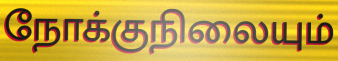
நோக்குநிலையும்